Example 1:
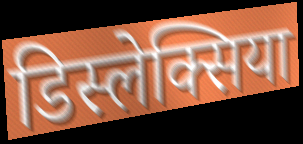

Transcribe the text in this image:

डिस्लेक्सिया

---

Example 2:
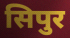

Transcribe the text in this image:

सिपुर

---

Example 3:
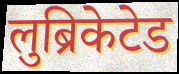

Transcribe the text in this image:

लुब्रिकेटेड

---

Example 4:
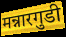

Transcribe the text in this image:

मन्नारगुडी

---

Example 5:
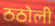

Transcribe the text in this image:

ठठोली